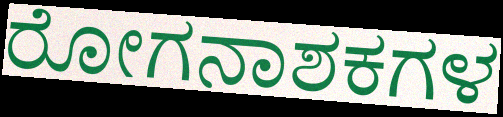
ರೋಗನಾಶಕಗಳ